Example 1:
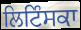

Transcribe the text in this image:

ਲਿਟਿੰਸਕਾ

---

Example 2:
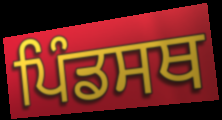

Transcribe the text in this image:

ਪਿੰਡਸਥ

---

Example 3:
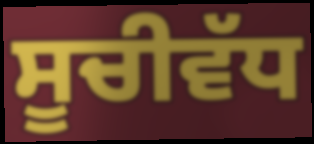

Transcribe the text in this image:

ਸੂਚੀਵੱਧ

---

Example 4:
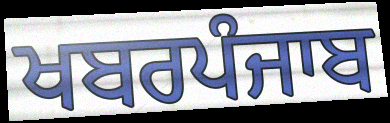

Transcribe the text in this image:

ਖਬਰਪੰਜਾਬ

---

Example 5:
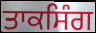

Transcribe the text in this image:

ਤਾਕਸਿੰਗ